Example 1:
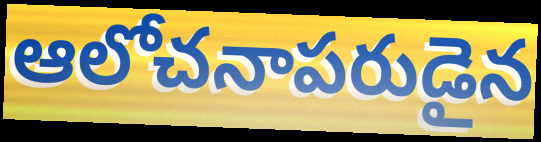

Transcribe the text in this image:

ఆలోచనాపరుడైన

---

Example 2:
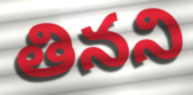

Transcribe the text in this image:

తినని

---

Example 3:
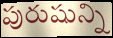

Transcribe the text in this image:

పురుషున్ని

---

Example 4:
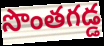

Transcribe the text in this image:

సొంతగడ్డ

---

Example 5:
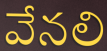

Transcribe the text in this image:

వేనలి